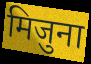
मिजुना